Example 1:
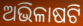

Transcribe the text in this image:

ଅଭିଳାଷଟି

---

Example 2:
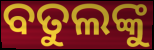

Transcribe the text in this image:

ବତୁଲଙ୍କୁ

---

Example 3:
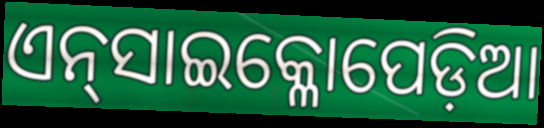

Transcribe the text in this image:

ଏନ୍‌ସାଇକ୍ଳୋପେଡ଼ିଆ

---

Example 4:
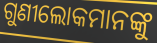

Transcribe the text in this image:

ଗୁଣୀଲୋକମାନଙ୍କୁ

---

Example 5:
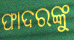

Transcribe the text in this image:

ଫାଦରଙ୍କୁ